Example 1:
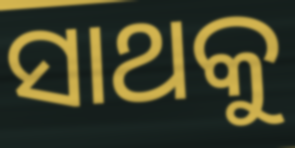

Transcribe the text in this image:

ସାଥକୁ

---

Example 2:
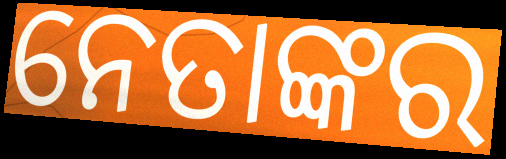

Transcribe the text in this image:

ନେତାଙ୍କର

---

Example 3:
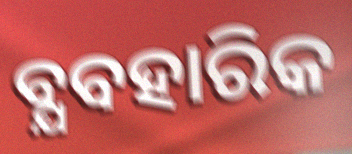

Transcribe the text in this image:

ବ୍ଯବହାରିକ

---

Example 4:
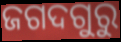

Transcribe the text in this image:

ଜଗଦଗୁରୁ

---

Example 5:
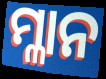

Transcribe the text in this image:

ମ୍ଳାନ